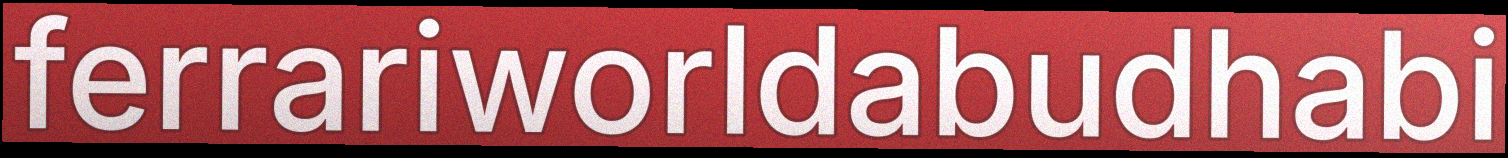
ferrariworldabudhabi